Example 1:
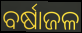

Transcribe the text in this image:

ବର୍ଷାଜଳ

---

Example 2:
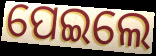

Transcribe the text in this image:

ପେଇଲେ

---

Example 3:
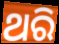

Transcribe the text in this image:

ଥରି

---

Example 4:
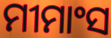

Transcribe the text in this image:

ମୀମାଂସ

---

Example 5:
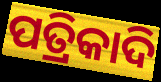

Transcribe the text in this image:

ପତ୍ରିକାଦି